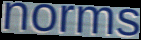
norms